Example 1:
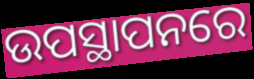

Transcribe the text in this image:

ଉପସ୍ଥାପନରେ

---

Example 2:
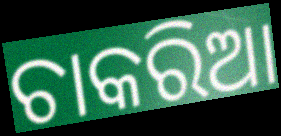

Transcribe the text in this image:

ଚାକରିଆ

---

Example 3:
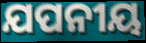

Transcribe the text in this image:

ଯପନୀୟ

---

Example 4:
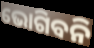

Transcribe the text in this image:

ଭୋଗିବନି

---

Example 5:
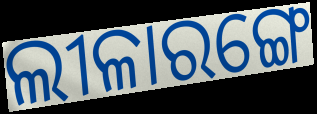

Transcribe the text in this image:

ଲୀଳାରଙ୍ଗେ